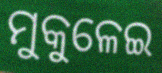
ମୁକୁଳେଇ